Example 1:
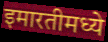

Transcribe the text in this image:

इमारतीमध्ये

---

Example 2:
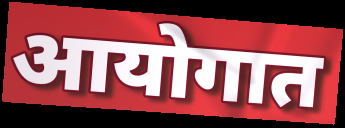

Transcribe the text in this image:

आयोगात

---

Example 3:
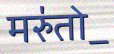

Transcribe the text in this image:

मरु॑तो॒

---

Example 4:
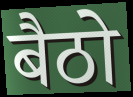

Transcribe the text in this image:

बैठो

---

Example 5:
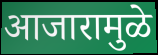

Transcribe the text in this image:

आजारामुळे